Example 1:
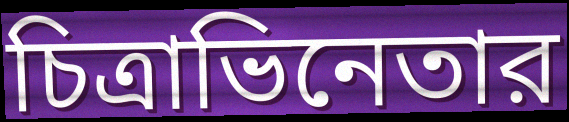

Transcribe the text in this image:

চিত্রাভিনেতার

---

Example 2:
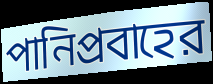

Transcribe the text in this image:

পানিপ্রবাহের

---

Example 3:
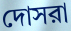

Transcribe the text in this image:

দোসরা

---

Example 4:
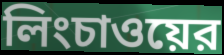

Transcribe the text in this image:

লিংচাওয়ের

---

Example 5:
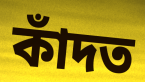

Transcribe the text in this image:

কাঁদত